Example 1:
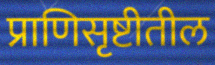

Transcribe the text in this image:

प्राणिसृष्टीतील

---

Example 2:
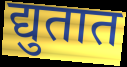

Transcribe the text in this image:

द्युतात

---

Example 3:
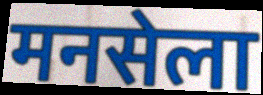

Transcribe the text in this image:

मनसेला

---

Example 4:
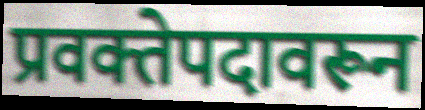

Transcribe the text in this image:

प्रवक्तेपदावरून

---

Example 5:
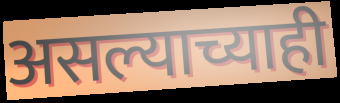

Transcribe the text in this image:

असल्याच्याही